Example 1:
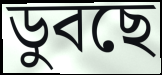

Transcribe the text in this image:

ডুবছে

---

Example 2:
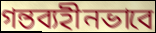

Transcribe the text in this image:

গন্তব্যহীনভাবে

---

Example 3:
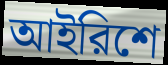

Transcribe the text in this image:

আইরিশে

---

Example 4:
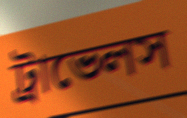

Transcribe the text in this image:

ট্রাভেলস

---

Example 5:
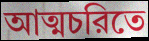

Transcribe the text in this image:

আত্মচরিতে